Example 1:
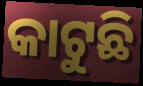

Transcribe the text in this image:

କାଟୁଛି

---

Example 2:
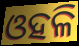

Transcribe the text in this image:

ଓହଳି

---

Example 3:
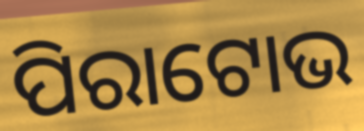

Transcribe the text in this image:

ପିରାଟୋଭ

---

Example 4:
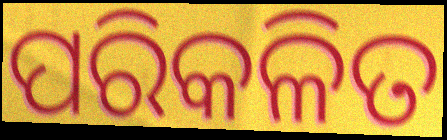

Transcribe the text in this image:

ପରିକଳିତ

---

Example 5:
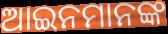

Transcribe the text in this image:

ଆଇନମାନଙ୍କ